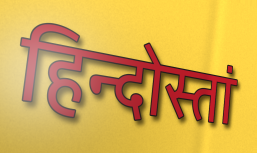
हिन्दोस्तां